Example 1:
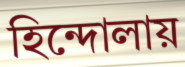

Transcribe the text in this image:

হিন্দোলায়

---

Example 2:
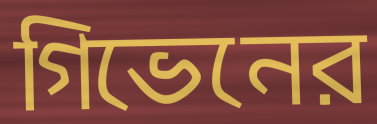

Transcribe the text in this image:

গিভেনের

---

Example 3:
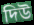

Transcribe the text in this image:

দিউ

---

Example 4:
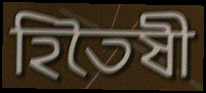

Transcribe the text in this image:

হিতৈষী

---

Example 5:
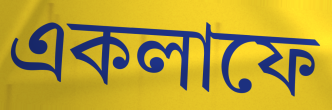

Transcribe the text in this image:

একলাফে